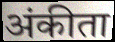
अंकीता